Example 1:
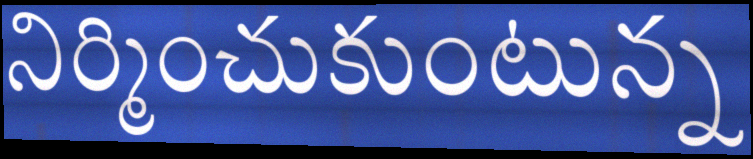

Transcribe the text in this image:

నిర్మించుకుంటున్న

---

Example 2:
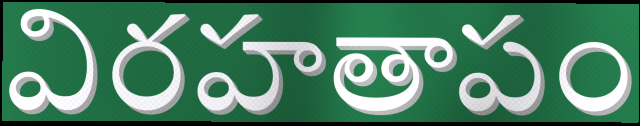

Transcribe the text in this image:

విరహతాపం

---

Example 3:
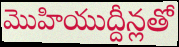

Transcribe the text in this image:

మొహియుద్దీన్లతో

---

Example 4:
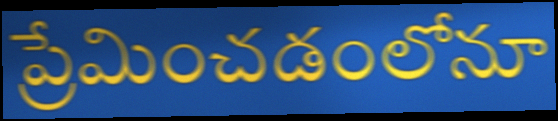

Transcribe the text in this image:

ప్రేమించడంలోనూ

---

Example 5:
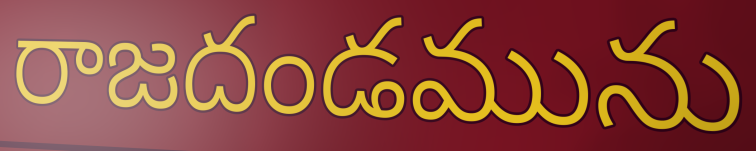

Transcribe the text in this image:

రాజదండమును